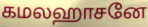
கமலஹாசனே